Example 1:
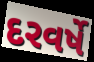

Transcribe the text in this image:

દરવર્ષે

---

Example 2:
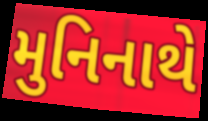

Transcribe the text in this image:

મુનિનાથે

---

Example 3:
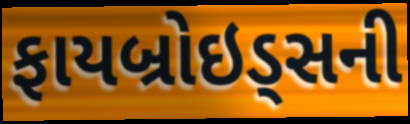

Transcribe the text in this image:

ફાયબ્રોઇડ્સની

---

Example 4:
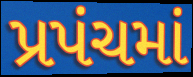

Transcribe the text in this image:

પ્રપંચમાં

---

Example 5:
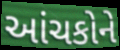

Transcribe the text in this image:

આંચકોને